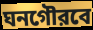
ঘনগৌরবে